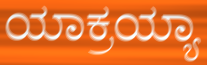
ಯಾಕ್ರಯ್ಯಾ